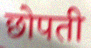
छोपती